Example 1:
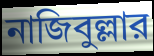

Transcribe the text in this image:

নাজিবুল্লার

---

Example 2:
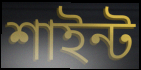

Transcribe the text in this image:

শাইন্ট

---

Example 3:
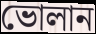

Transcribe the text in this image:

ভোলান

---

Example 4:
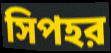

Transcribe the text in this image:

সিপহর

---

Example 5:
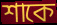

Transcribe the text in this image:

শাকে